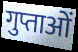
गुप्ताओं